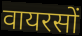
वायरसों